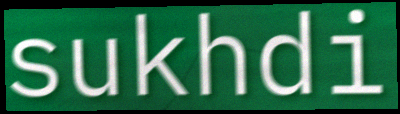
sukhdi